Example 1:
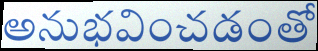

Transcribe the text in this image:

అనుభవించడంతో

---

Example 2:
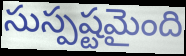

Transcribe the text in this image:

సుస్పష్టమైంది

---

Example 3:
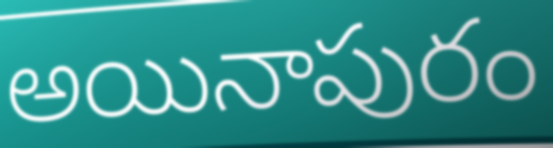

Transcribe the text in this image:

అయినాపురం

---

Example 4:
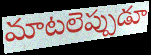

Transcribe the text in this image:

మాటలెప్పుడూ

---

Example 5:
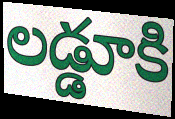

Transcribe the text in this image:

లడ్డూకి